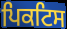
ਪਿਕਟਿਸ